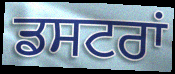
ਡਸਟਰਾਂ